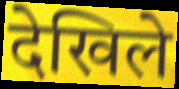
देखिले